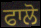
ਫਾਲੋ